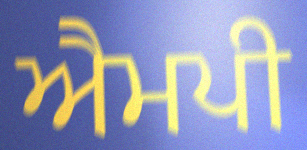
ਐਮਪੀ